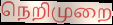
நெறிமுறை